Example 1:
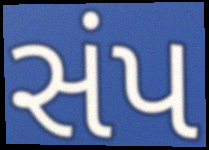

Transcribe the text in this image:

સંપ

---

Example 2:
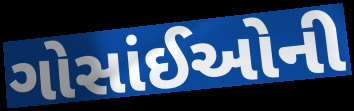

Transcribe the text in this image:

ગોસાંઈઓની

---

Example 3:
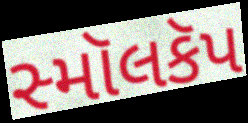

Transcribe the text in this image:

સ્મૉલકૅપ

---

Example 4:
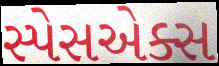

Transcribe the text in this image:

સ્પેસએક્સ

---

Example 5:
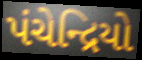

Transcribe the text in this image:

પંચેન્દ્રિયો